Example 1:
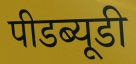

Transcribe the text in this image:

पीडब्यूडी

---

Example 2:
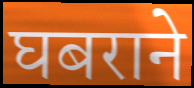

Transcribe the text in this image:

घबराने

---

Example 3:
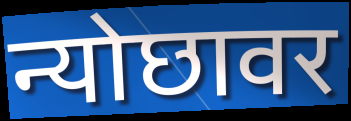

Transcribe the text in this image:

न्योछावर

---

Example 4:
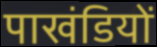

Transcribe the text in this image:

पाखंडियों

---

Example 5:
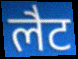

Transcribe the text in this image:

लैट